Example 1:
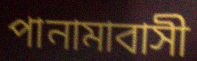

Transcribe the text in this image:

পানামাবাসী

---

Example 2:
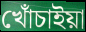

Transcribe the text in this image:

খোঁচাইয়া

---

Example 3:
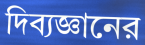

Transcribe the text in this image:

দিব্যজ্ঞানের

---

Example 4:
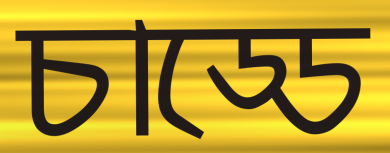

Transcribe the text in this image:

চাড্ডে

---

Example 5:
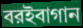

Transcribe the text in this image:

বরইবাগান